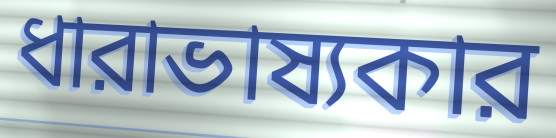
ধারাভাষ্যকার